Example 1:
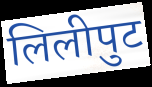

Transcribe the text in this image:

लिलीपुट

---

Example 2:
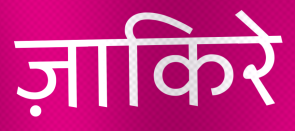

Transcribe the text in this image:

ज़ाकिरे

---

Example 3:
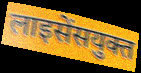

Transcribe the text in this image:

लाइसेंसयुक्त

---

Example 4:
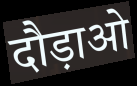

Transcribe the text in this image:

दौड़ाओ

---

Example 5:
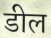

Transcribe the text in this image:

डील